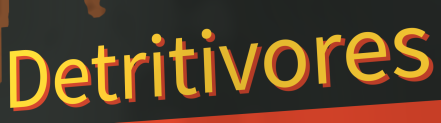
Detritivores